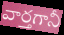
వార్తగానీ